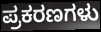
ಪ್ರಕರಣಗಳು